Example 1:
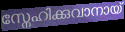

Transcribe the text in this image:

സ്നേഹിക്കുവാനായ്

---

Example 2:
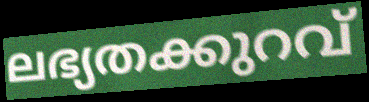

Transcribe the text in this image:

ലഭ്യതക്കുറവ്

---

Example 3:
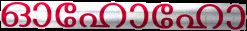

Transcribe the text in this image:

ഓഹോഹോ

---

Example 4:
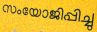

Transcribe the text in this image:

സംയോജിപ്പിച്ചു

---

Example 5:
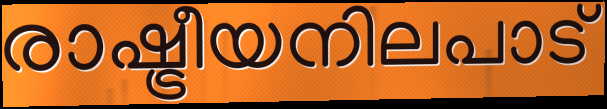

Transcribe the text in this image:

രാഷ്ട്രീയനിലപാട്